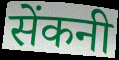
सेंकनी